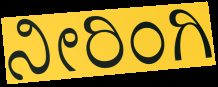
ನೀರಿಂಗಿ